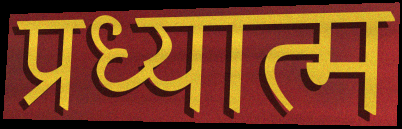
प्रध्यात्म